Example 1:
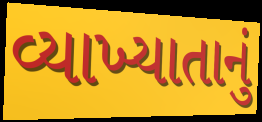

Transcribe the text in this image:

વ્યાખ્યાતાનું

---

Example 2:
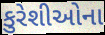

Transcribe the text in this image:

કુરેશીઓના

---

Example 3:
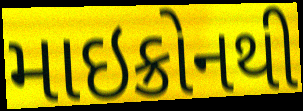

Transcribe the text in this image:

માઇક્રોનથી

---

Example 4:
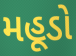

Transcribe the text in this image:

મહૂડો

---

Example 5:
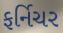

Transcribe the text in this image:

ફર્નિચર